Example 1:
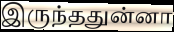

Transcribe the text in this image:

இருந்ததுன்னா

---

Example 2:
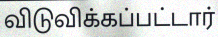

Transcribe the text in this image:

விடுவிக்கப்பட்டார்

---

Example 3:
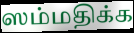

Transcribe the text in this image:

ஸம்மதிக்க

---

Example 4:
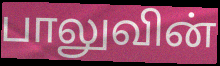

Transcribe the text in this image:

பாலுவின்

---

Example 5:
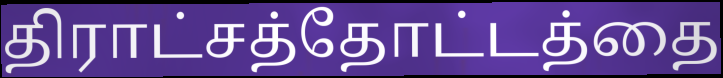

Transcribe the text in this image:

திராட்சத்தோட்டத்தை